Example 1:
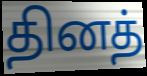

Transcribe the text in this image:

தினத்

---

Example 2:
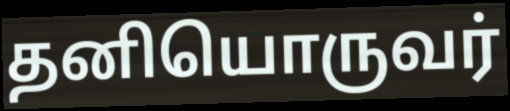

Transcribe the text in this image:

தனியொருவர்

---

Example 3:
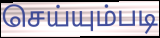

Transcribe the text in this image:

செய்யும்படி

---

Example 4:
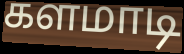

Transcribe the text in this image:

களமாடி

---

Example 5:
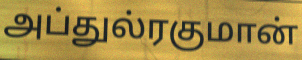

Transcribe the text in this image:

அப்துல்ரகுமான்